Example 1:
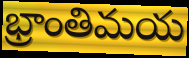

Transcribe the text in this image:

భ్రాంతిమయ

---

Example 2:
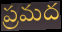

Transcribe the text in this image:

ప్రమద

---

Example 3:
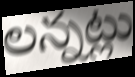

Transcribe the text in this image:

లన్నట్లు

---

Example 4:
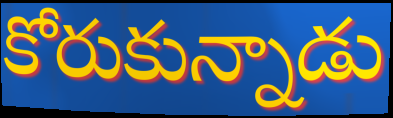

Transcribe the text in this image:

కోరుకున్నాడు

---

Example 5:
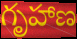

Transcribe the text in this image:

గృహాణ